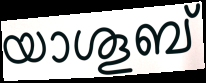
യാശൂബ്